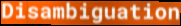
Disambiguation